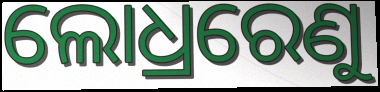
ଲୋଧ୍ରରେଣୁ